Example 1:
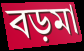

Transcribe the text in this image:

বড়মা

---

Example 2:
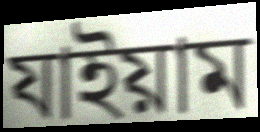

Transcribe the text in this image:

যাইয়াম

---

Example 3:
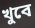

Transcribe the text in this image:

খুবে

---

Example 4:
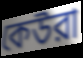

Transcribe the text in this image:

কেউরা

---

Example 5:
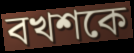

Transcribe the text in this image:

বখশকে